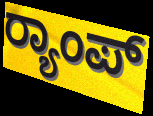
ರ‍್ಯಾಂಪ್